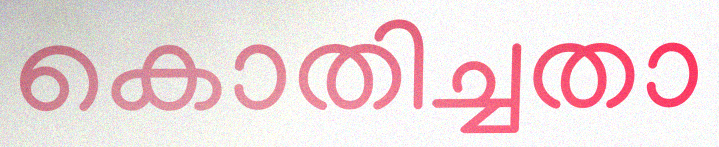
കൊതിച്ചതാ